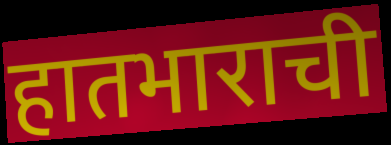
हातभाराची